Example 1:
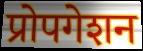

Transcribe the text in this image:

प्रोपगेशन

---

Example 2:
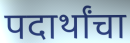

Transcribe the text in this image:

पदार्थांचा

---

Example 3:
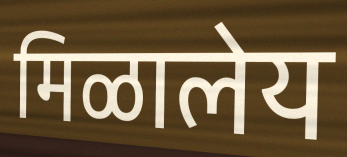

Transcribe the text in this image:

मिळालेय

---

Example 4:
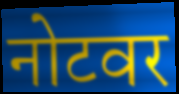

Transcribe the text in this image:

नोटवर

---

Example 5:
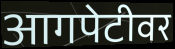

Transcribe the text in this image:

आगपेटीवर